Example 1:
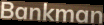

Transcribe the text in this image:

Bankman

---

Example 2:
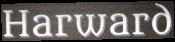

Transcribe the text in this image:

Harward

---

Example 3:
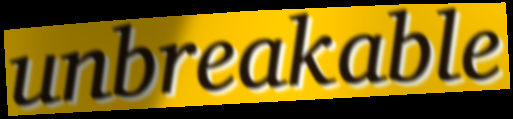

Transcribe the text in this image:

unbreakable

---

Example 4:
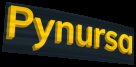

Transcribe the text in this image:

Pynursa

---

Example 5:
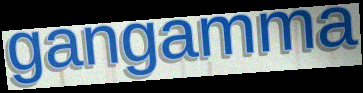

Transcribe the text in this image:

gangamma